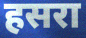
हसरा